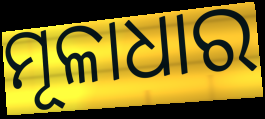
ମୂଳାଧାର